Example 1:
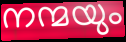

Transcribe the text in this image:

നന്മയും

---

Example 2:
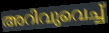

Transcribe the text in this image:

അറിവുവെച്ച്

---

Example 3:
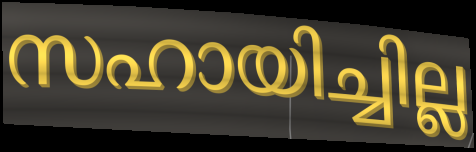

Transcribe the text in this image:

സഹായിച്ചില്ല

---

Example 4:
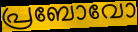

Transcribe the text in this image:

പ്രബോവോ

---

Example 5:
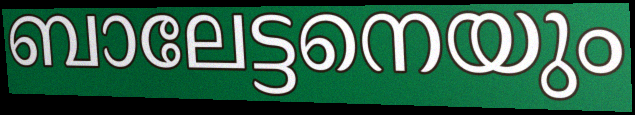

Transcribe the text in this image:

ബാലേട്ടനെയും